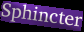
Sphincter